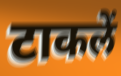
टाकलें